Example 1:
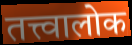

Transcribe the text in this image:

तत्त्वालोक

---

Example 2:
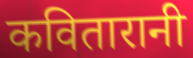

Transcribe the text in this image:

कवितारानी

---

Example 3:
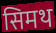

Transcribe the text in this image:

सिमथ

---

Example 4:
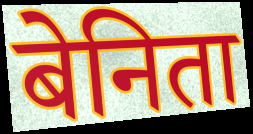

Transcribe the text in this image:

बेनिता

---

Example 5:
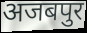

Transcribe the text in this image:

अजबपुर